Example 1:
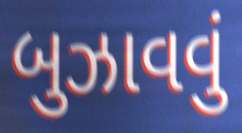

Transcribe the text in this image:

બુઝાવવું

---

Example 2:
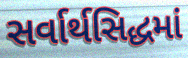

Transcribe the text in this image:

સર્વાર્થસિદ્ધમાં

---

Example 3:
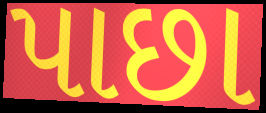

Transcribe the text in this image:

પાછા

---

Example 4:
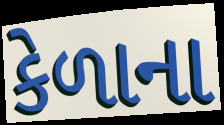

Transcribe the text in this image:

કેળાના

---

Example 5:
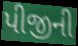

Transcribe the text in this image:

પીજીની